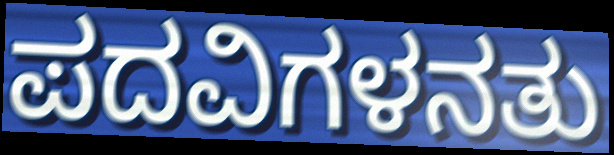
ಪದವಿಗಳನತು